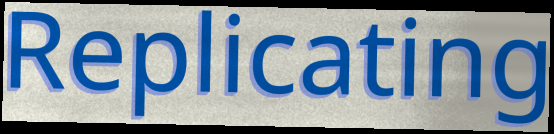
Replicating